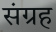
संग्रह